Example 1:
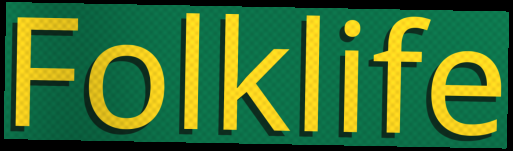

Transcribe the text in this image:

Folklife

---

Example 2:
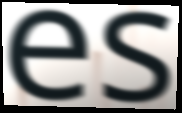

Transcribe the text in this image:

es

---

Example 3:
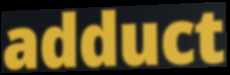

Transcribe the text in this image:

adduct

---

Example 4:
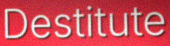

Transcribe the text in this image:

Destitute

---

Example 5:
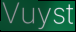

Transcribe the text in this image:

Vuyst